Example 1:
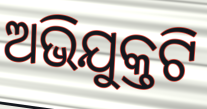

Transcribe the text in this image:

ଅଭିଯୁକ୍ତଟି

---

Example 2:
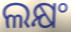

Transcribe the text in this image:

ଲକ୍ଷଂ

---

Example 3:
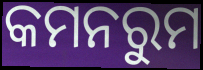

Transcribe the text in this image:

କମନରୁମ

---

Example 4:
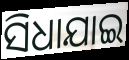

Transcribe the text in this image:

ସିଧାଯାଇ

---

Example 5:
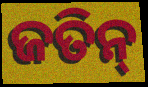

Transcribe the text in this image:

ଜତିନ୍